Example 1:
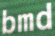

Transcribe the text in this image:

bmd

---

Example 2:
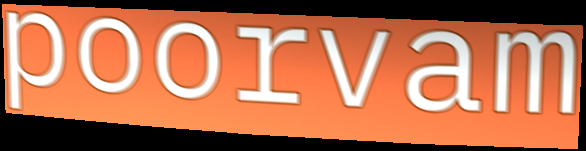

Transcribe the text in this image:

poorvam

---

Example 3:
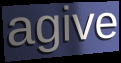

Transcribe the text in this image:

agive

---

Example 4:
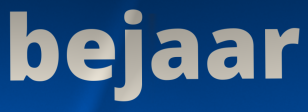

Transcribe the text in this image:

bejaar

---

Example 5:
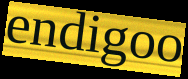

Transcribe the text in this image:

endigoo